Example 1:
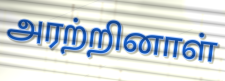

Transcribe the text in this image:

அரற்றினாள்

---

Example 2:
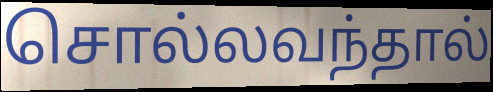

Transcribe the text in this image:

சொல்லவந்தால்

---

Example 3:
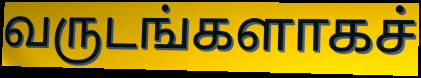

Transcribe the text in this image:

வருடங்களாகச்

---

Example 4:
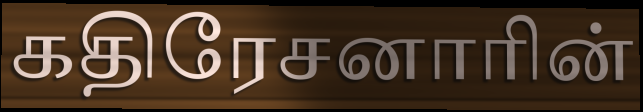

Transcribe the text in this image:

கதிரேசனாரின்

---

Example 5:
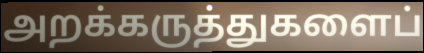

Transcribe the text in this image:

அறக்கருத்துகளைப்